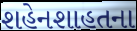
શહેનશાહતના